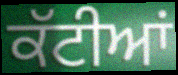
ਕੱਟੀਆਂ